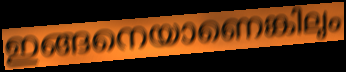
ഇങ്ങനെയാണെങ്കിലും